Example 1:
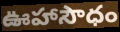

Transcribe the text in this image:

ఊహాసౌధం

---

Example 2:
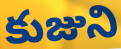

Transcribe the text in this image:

కుజుని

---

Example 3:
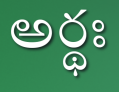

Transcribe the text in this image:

అర్థః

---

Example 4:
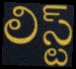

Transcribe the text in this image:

లిస్ట్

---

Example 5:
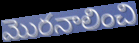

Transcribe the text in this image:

మొరనాలించి